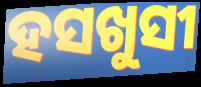
ହସଖୁସୀ